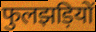
फुलझड़ियों